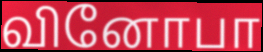
வினோபா